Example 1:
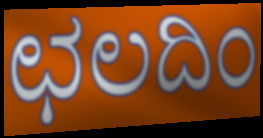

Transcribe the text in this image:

ಛಲದಿಂ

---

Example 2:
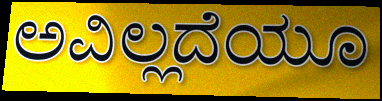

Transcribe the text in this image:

ಅವಿಲ್ಲದೆಯೂ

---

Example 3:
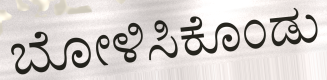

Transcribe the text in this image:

ಬೋಳಿಸಿಕೊಂಡು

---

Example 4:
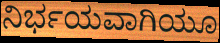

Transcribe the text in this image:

ನಿರ್ಭಯವಾಗಿಯೂ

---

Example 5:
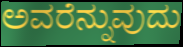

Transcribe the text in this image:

ಅವರೆನ್ನುವುದು